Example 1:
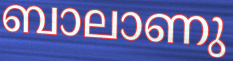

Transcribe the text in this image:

ബാലാണു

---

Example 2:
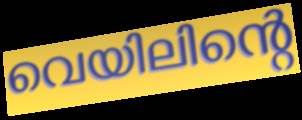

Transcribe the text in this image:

വെയിലിന്റെ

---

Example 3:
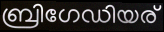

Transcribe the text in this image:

ബ്രിഗേഡിയര്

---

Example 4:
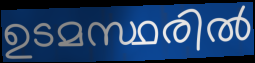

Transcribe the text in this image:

ഉടമസ്ഥരിൽ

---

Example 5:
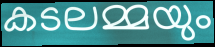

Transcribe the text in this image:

കടലമ്മയും